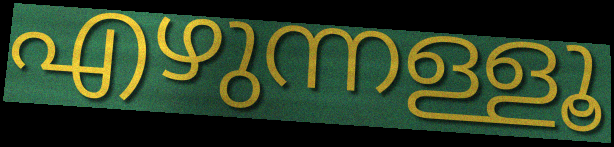
എഴുന്നള്ളൂ